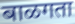
बाळगता